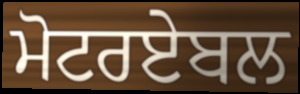
ਮੋਟਰਏਬਲ